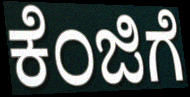
ಕೆಂಜಿಗೆ